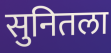
सुनितला